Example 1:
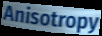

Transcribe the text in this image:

Anisotropy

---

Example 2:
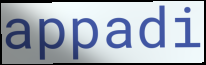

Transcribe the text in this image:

appadi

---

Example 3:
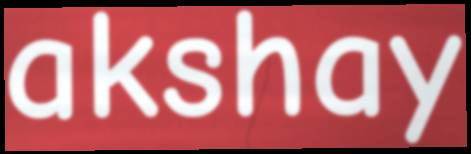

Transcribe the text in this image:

akshay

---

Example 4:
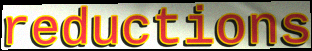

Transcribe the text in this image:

reductions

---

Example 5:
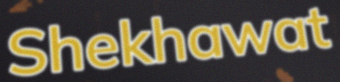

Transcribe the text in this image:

Shekhawat